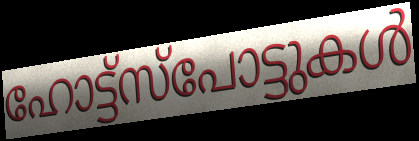
ഹോട്ട്സ്പോട്ടുകൾ